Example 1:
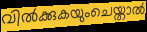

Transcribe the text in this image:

വിൽക്കുകയുംചെയ്താൽ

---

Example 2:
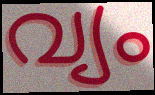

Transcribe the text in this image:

വ്യം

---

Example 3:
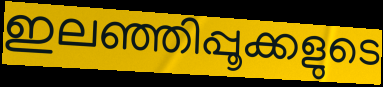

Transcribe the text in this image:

ഇലഞ്ഞിപ്പൂക്കളുടെ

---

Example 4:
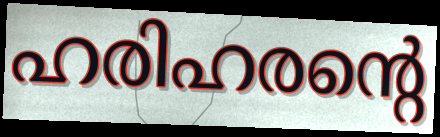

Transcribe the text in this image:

ഹരിഹരന്റെ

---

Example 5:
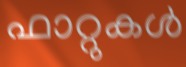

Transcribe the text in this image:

ഫാറ്റുകൾ